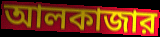
আলকাজার